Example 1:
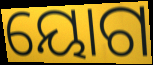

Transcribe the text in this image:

ୟୋଗ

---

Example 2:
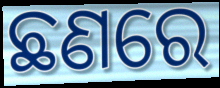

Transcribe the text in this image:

ଛଣରେ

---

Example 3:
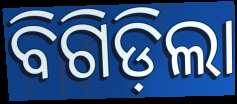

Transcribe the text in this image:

ବିଗିଡ଼ିଲା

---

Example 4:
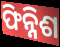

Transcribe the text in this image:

ଫିନ୍ନିଶ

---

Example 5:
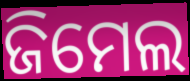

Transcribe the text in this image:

ଜିମେଲ